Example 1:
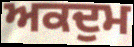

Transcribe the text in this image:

ਅਕਦੁਮ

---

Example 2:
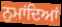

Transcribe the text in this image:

ਨੁਮਾਂਦਿਆਂ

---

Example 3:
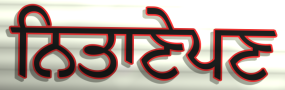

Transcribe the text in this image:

ਨਿਤਾਣੇਪਣ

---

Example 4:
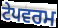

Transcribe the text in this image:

ਟੇਪਵਰਮ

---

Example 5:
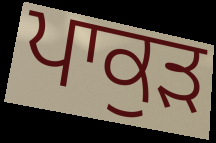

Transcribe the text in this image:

ਪਾਕੁੜ